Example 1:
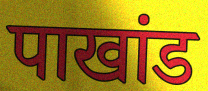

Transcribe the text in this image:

पाखांड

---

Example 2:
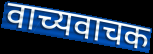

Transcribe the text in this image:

वाच्यवाचक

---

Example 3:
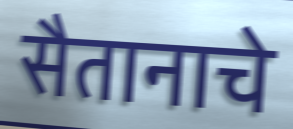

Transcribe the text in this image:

सैतानाचे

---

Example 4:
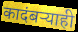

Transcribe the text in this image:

कादंबऱ्याही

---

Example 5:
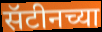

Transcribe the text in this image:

सॅटीनच्या